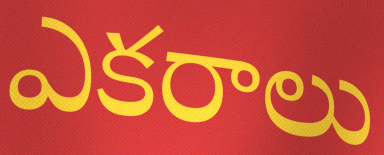
ఎకరాలు